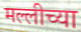
मल्लीच्या